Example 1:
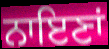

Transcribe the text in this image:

ਨਾਇਣਾਂ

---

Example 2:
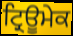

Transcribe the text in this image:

ਟ੍ਰਿਊਮੇਕ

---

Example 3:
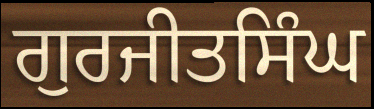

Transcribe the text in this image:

ਗੁਰਜੀਤਸਿੰਘ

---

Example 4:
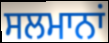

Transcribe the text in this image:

ਸਲਮਾਨਾਂ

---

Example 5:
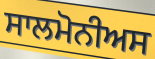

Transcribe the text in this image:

ਸਾਲਮੋਨੀਅਸ